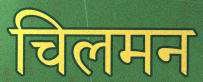
चिलमन